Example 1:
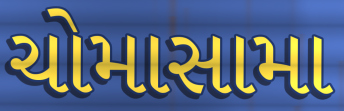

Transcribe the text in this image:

ચોમાસામા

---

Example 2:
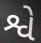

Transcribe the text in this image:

શ્વે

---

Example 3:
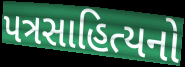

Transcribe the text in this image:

પત્રસાહિત્યનો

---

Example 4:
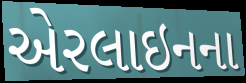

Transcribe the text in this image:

એરલાઇનના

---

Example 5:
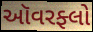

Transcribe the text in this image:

ઑવરફ્લો